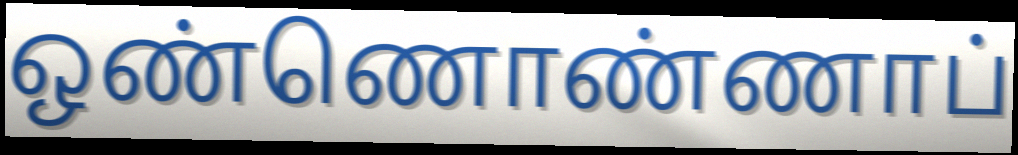
ஒண்ணொண்ணாப்